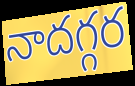
నాదగ్గర